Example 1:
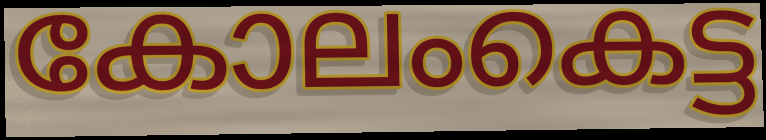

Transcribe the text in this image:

കോലംകെട്ട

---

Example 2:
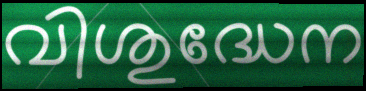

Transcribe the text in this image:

വിശുദ്ധേന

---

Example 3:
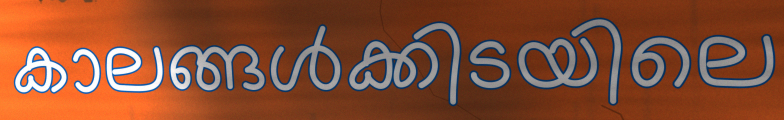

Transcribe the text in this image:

കാലങ്ങൾക്കിടയിലെ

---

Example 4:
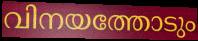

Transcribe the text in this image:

വിനയത്തോടും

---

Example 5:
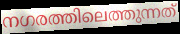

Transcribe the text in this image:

നഗരത്തിലെത്തുന്നത്